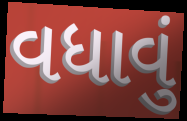
વધાવું